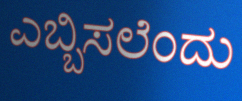
ಎಬ್ಬಿಸಲೆಂದು